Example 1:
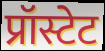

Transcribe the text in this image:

प्रॉस्टेट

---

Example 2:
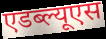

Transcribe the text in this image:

एडब्ल्यूएस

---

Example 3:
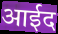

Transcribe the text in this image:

आईद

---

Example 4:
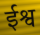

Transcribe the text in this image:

ईश्व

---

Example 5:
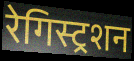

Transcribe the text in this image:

रेगिस्ट्रशन